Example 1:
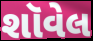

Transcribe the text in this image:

શૉવેલ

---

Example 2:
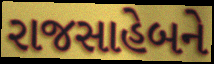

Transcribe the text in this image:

રાજસાહેબને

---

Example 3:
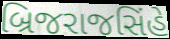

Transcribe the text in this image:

બ્રિજરાજસિંહે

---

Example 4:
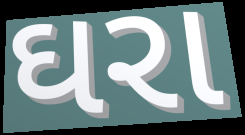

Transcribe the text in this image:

ઘરા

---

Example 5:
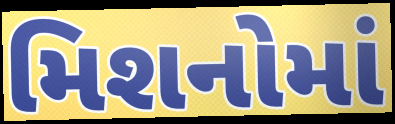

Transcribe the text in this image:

મિશનોમાં